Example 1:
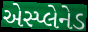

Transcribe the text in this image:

એસ્પ્લેનેડ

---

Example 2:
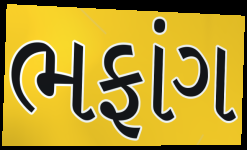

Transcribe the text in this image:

ભફાંગ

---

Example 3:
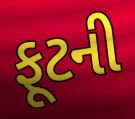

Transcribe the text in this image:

ફૂટની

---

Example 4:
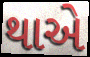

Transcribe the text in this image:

થાએ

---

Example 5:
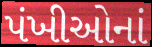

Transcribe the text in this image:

પંખીઓનાં